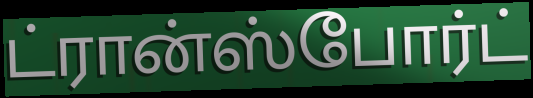
ட்ரான்ஸ்போர்ட்